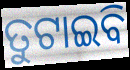
ତୁଟାଇବି